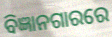
ବିଜ୍ଞାନଗାରରେ